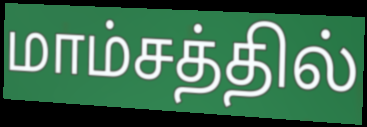
மாம்சத்தில்